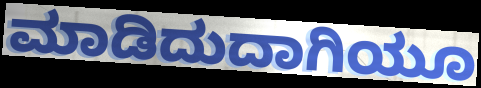
ಮಾಡಿದುದಾಗಿಯೂ